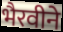
भैरवीने